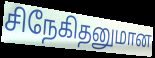
சிநேகிதனுமான